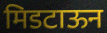
मिडटाऊन